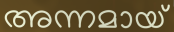
അന്നമായ്